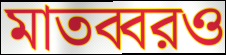
মাতব্বরও